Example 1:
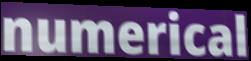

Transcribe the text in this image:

numerical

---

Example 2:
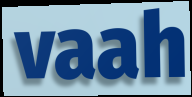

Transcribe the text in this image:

vaah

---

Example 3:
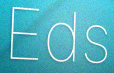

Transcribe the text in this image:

Eds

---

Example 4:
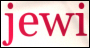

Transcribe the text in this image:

jewi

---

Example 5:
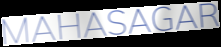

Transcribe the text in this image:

MAHASAGAR